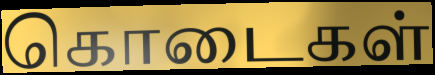
கொடைகள்